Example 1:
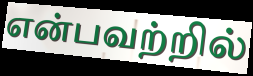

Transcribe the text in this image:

என்பவற்றில்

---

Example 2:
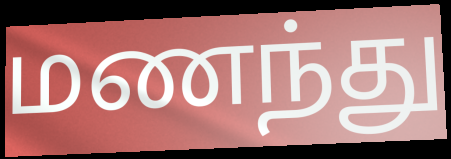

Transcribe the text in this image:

மணந்து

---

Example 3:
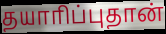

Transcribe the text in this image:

தயாரிப்புதான்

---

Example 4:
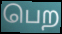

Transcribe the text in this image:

பெற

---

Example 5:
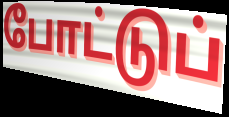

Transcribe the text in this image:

போட்டுப்